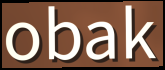
obak